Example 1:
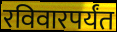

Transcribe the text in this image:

रविवारपर्यंत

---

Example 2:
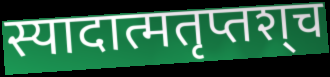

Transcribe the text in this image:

स्यादात्मतृप्तश्च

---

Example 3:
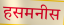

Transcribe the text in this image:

हसमनीस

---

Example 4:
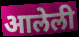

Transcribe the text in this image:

आलेली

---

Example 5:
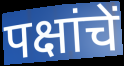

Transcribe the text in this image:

पक्षांचें